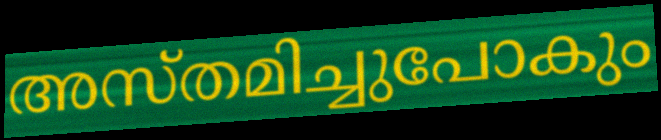
അസ്തമിച്ചുപോകും